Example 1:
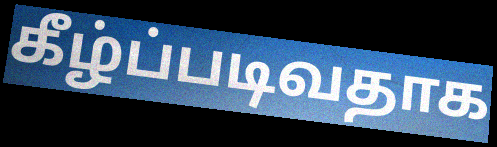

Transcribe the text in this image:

கீழ்ப்படிவதாக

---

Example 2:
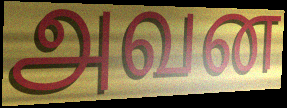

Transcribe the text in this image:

அவன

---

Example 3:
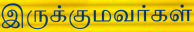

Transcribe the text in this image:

இருக்குமவர்கள்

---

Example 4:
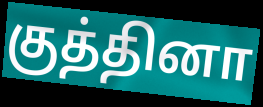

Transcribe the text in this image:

குத்தினா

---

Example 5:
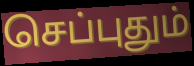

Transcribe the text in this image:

செப்புதும்